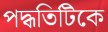
পদ্ধতিটিকে